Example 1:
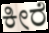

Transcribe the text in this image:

ಕೀರೆ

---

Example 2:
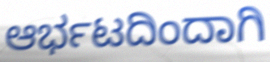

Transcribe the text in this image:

ಆರ್ಭಟದಿಂದಾಗಿ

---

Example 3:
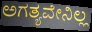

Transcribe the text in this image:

ಅಗತ್ಯವೇನಿಲ್ಲ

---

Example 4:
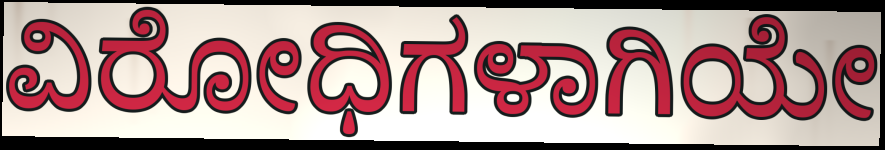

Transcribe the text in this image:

ವಿರೋಧಿಗಳಾಗಿಯೇ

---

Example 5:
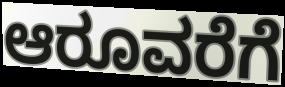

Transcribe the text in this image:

ಆರೂವರೆಗೆ